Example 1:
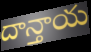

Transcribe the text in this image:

దాన్తాయ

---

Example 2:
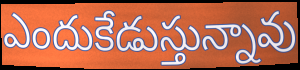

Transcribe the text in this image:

ఎందుకేడుస్తున్నావు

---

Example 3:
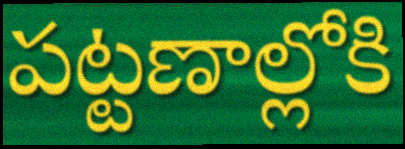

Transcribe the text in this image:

పట్టణాల్లోకి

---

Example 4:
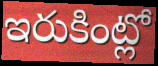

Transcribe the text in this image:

ఇరుకింట్లో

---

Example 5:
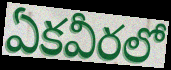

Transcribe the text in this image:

ఏకవీరలో